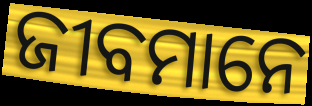
ଜୀବମାନେ